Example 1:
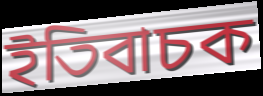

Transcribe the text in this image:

ইতিবাচক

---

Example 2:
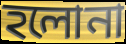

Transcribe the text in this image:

হলোনা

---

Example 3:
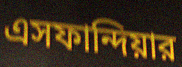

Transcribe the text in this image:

এসফান্দিয়ার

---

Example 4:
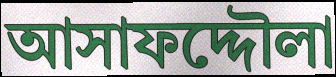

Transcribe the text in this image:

আসাফদ্দৌলা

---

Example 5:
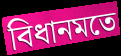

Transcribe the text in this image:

বিধানমতে